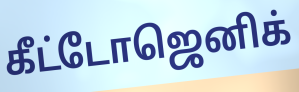
கீட்டோஜெனிக்